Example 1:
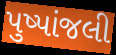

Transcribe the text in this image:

પુષ્પાંજલી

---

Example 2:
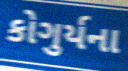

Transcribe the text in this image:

કોગુર્યના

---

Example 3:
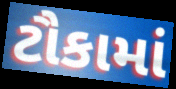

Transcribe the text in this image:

ટૌકામાં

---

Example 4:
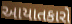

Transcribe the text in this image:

આયાતકારો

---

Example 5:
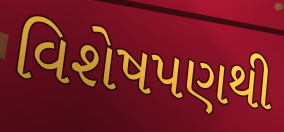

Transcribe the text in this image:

વિશેષપણથી